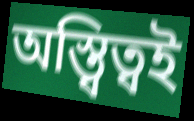
অস্ত্বিত্বই